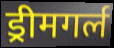
ड्रीमगर्ल